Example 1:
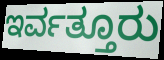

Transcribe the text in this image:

ಇರ್ವತ್ತೂರು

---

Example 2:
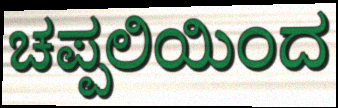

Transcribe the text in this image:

ಚಪ್ಪಲಿಯಿಂದ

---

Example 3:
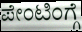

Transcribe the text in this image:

ಪೇಂಟಿಂಗ್ಗೆ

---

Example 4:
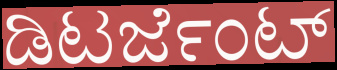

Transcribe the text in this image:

ಡಿಟರ್ಜೆಂಟ್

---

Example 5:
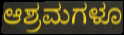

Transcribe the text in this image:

ಆಶ್ರಮಗಳೂ